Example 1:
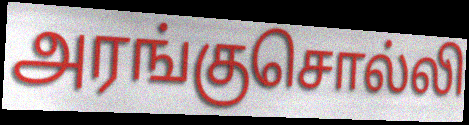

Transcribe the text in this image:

அரங்குசொல்லி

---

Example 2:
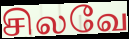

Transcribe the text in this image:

சிலவே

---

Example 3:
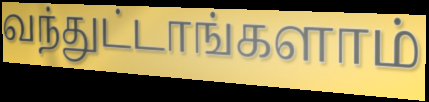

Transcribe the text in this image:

வந்துட்டாங்களாம்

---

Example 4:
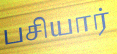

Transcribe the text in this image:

பசியார்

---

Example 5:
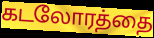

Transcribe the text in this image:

கடலோரத்தை